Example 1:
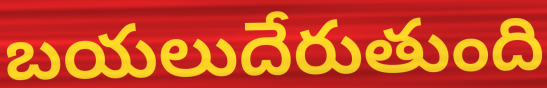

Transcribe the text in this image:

బయలుదేరుతుంది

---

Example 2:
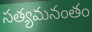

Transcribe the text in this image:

సత్యమనంతం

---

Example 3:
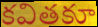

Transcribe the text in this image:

కవితకూ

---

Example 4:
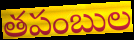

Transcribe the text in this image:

తపంబుల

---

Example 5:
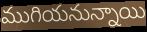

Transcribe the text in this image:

ముగియనున్నాయి